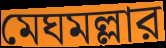
মেঘমল্লার